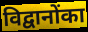
विद्वानोंका